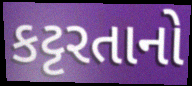
કટ્ટરતાનો